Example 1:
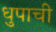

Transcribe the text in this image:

धुपाची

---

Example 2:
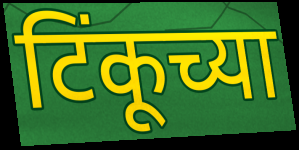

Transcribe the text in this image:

टिंकूच्या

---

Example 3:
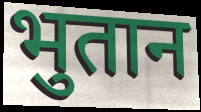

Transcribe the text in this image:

भुतान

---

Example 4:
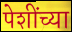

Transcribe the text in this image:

पेशींच्या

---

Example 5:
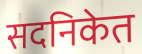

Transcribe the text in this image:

सदनिकेत